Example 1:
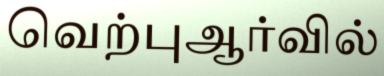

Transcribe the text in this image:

வெற்புஆர்வில்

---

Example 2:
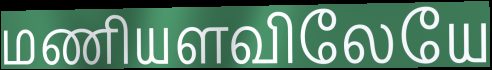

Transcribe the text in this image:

மணியளவிலேயே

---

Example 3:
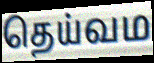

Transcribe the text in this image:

தெய்வம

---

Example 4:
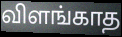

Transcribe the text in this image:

விளங்காத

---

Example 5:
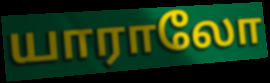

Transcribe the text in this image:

யாராலோ